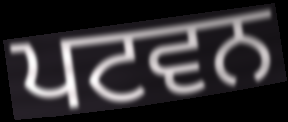
ਪਟਵਨ